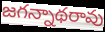
జగన్నాథరావు